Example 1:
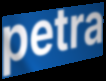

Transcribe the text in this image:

petra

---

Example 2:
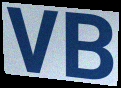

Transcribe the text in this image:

VB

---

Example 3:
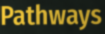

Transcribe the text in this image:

Pathways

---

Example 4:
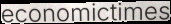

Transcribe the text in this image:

economictimes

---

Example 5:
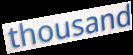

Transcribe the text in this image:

thousand